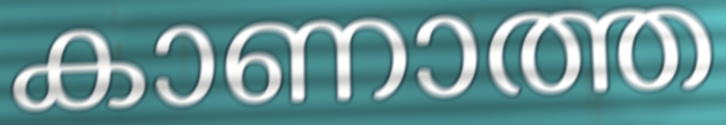
കാണാത്ത